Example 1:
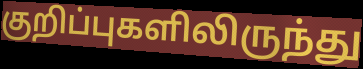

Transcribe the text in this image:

குறிப்புகளிலிருந்து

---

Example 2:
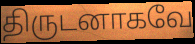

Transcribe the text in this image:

திருடனாகவே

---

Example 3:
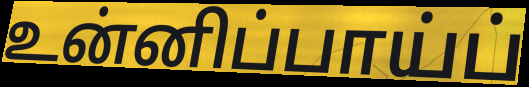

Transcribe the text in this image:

உன்னிப்பாய்ப்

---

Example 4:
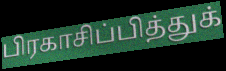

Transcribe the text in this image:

பிரகாசிப்பித்துக்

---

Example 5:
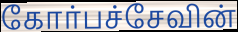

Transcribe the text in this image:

கோர்பச்சேவின்